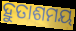
ହୁତାଶମୟ